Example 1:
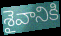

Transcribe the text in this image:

శైవానికి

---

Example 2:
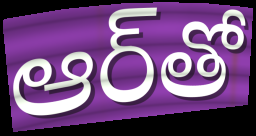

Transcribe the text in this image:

ఆర్‌తో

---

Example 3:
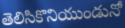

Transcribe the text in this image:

తెలిసికొనియుండునో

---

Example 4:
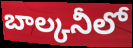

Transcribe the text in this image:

బాల్కనీలో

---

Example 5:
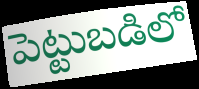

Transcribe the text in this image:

పెట్టుబడిలో